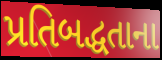
પ્રતિબદ્ધતાના